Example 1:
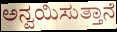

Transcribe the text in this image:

ಅನ್ವಯಿಸುತ್ತಾನೆ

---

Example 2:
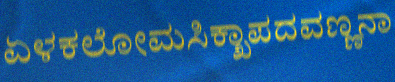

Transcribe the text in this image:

ಏಳಕಲೋಮಸಿಕ್ಖಾಪದವಣ್ಣನಾ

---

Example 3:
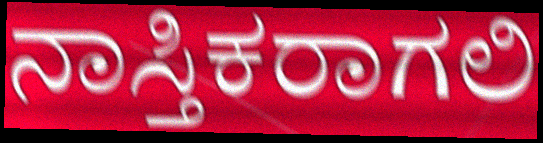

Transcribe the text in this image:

ನಾಸ್ತಿಕರಾಗಲಿ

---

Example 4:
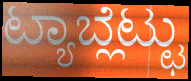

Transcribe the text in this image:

ಟ್ಯಾಬ್ಲೆಟ್ಟು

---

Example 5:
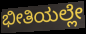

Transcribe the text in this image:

ಭೀತಿಯಲ್ಲೇ